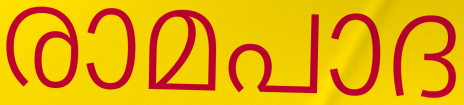
രാമപാദ